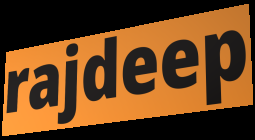
rajdeep